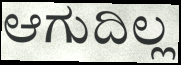
ಆಗುದಿಲ್ಲ